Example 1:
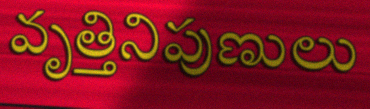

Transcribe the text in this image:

వృత్తినిపుణులు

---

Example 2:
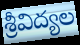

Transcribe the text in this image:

శ్రీవిద్యల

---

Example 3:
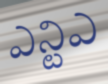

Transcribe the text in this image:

ఎన్టిఎ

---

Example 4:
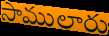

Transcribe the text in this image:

సాములారు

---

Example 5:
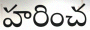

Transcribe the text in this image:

హరించ